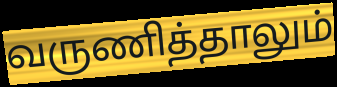
வருணித்தாலும்